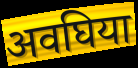
अवघिया